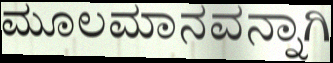
ಮೂಲಮಾನವನ್ನಾಗಿ